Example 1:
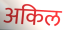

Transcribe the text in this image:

अकिल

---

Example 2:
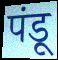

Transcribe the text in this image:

पंडू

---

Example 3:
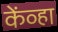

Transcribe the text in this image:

केंव्हा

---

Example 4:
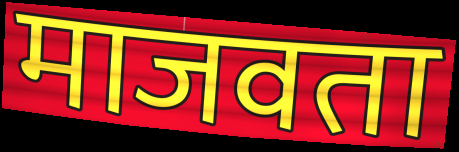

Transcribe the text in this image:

माजवता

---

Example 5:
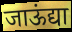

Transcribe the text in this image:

जाऊंद्या